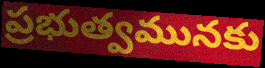
ప్రభుత్వమునకు